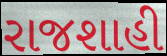
રાજશાહી